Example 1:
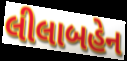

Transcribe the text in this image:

લીલાબહેન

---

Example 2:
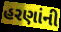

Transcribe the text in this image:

હરણાંની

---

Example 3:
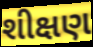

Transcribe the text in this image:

શીક્ષણ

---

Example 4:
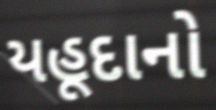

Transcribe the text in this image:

યહૂદાનો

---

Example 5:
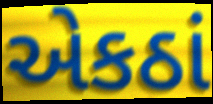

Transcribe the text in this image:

એકઠાં